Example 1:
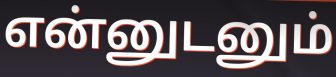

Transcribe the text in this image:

என்னுடனும்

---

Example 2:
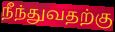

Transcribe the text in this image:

நீந்துவதற்கு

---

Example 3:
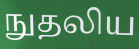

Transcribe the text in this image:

நுதலிய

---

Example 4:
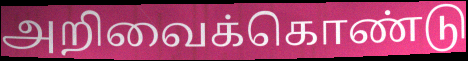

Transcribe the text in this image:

அறிவைக்கொண்டு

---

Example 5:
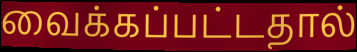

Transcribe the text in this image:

வைக்கப்பட்டதால்